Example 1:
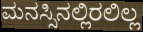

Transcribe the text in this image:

ಮನಸ್ಸಿನಲ್ಲಿರಲಿಲ್ಲ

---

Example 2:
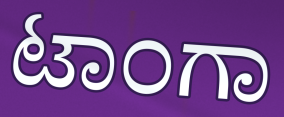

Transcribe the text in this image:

ಟಾಂಗಾ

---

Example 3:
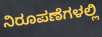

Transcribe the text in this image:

ನಿರೂಪಣೆಗಳಲ್ಲಿ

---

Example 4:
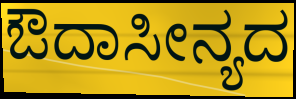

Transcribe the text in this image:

ಔದಾಸೀನ್ಯದ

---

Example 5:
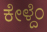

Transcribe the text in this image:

ಕೇಳ್ದೆಂ